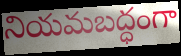
నియమబద్ధంగా